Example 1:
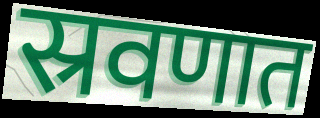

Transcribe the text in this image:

स्रवणात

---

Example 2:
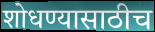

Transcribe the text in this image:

शोधण्यासाठीच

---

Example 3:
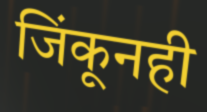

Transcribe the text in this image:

जिंकूनही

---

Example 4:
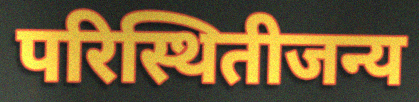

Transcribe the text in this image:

परिस्थितीजन्य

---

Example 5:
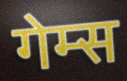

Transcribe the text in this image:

गेम्स